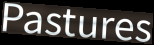
Pastures